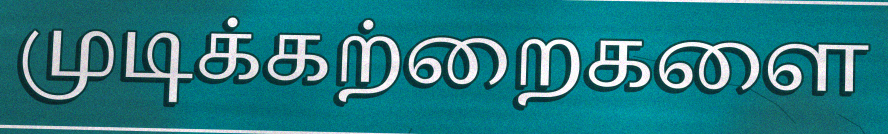
முடிக்கற்றைகளை